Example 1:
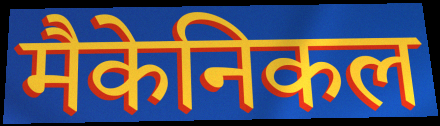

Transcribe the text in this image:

मैकेनिकल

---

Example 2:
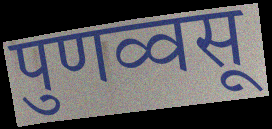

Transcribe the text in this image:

पुणव्वसू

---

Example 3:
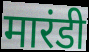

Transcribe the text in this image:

मारंडी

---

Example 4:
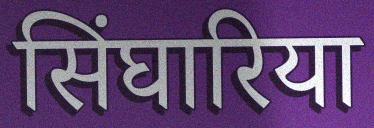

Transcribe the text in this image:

सिंघारिया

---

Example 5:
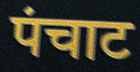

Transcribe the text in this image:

पंचाट